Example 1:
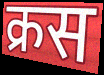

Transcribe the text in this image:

क्रस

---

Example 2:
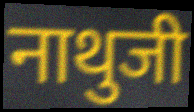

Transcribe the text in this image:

नाथुजी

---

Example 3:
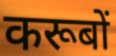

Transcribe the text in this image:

करूबों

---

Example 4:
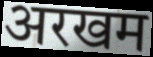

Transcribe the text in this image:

अरखम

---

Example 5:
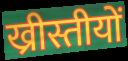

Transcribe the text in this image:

ख्रीस्तीयों